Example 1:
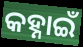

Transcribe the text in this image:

କହ୍ନାଇଁ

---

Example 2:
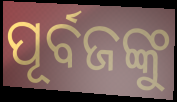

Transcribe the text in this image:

ପୂର୍ବଜଙ୍କୁ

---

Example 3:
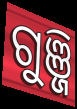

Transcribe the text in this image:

ଗୁଞ୍ଜି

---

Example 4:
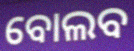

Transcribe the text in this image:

ବୋଲବ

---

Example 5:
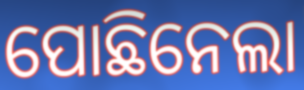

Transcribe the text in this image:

ପୋଛିନେଲା